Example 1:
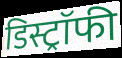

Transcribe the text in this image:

डिस्ट्रॉफी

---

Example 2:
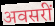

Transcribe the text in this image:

अवसरीं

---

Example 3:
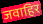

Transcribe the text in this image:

जवाहिर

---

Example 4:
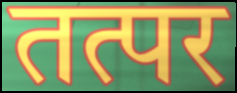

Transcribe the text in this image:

तत्पर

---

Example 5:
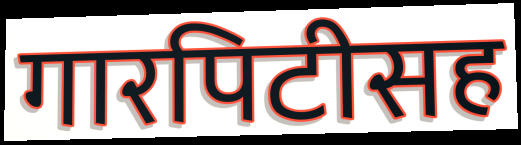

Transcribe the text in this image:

गारपिटीसह